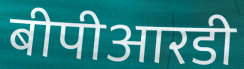
बीपीआरडी